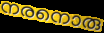
നരനൊരു